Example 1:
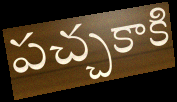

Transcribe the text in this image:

పచ్చకాకి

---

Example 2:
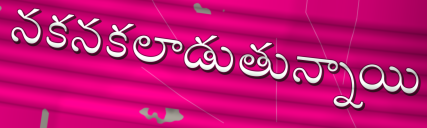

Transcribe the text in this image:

నకనకలాడుతున్నాయి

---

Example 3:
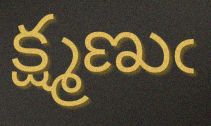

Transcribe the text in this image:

క్ష్మణుఁ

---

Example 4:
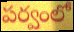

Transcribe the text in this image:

పర్వంలో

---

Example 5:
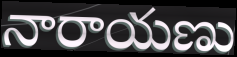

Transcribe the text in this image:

నారాయణు